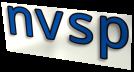
nvsp